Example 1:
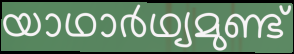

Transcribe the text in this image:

യാഥാർഥ്യമുണ്ട്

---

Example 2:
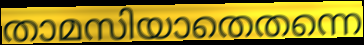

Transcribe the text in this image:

താമസിയാതെതന്നെ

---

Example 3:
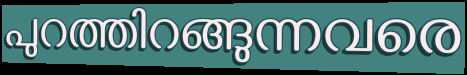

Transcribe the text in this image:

പുറത്തിറങ്ങുന്നവരെ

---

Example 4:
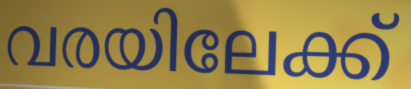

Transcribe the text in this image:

വരയിലേക്ക്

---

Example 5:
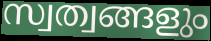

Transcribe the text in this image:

സ്വത്വങ്ങളും